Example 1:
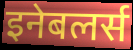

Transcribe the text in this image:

इनेबलर्स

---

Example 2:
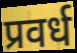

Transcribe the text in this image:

प्रवर्ध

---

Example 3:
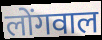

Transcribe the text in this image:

लोंगवाल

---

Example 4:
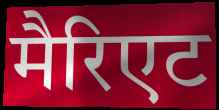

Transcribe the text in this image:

मैरिएट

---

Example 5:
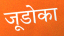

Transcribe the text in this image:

जूडोका